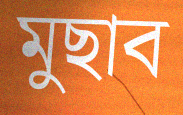
মুছাব